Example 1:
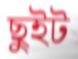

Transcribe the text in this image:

ছুইট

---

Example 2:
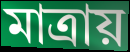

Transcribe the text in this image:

মাত্রায়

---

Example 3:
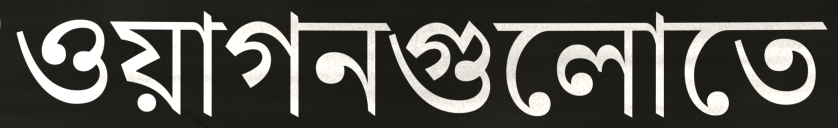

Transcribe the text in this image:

ওয়াগনগুলোতে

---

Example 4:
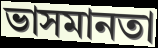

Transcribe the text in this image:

ভাসমানতা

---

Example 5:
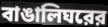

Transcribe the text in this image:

বাঙালিঘরের